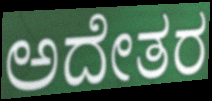
ಅದೇತರ